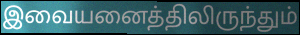
இவையனைத்திலிருந்தும்